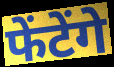
फेंटेंगे